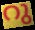
റു